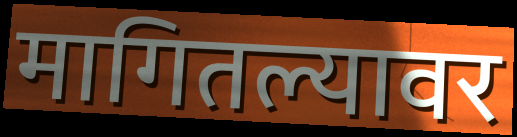
मागितल्यावर